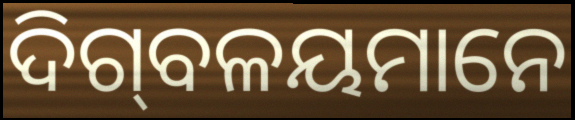
ଦିଗ୍‌ବଳୟମାନେ